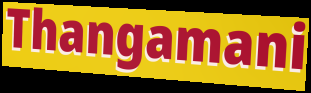
Thangamani